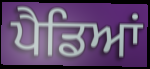
ਪੈਡਿਆਂ